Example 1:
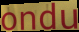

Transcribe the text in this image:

ondu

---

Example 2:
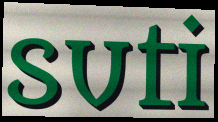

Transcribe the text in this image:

suti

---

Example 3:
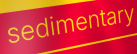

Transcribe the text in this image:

sedimentary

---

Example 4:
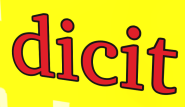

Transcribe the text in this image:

dicit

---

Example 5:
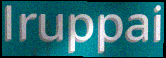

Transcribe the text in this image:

Iruppai